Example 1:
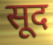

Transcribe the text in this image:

सूद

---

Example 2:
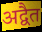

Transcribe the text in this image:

अद्वैत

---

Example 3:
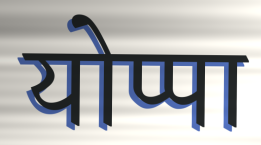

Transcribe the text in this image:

योप्पा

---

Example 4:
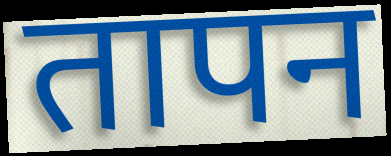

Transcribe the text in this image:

तापन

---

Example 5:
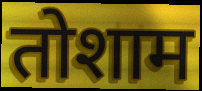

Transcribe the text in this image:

तोशाम